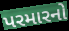
પરમારનો